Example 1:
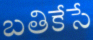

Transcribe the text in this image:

బతికేసే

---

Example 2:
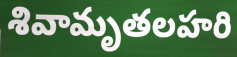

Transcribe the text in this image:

శివామృతలహరి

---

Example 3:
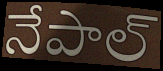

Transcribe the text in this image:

నేపాల్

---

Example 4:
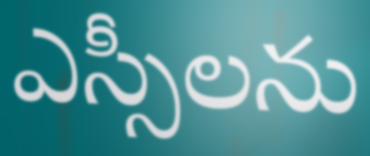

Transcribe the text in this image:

ఎస్సీలను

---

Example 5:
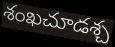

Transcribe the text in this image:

శంఖచూడశ్చ